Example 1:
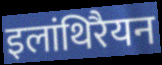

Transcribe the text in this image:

इलांथिरैयन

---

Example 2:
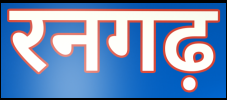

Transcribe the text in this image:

रनगढ़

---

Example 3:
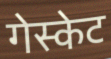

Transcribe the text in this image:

गेस्केट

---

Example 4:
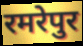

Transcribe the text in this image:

रमरेपुर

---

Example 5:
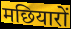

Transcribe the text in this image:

मछियारों